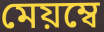
মেয়ম্বে